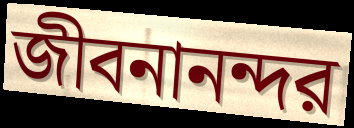
জীবনানন্দর